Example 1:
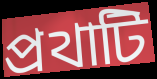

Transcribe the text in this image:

প্রথাটি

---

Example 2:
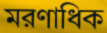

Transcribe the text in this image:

মরণাধিক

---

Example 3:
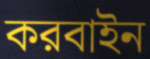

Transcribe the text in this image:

করবাইন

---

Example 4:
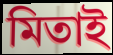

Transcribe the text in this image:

মিতাই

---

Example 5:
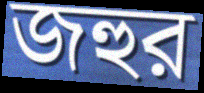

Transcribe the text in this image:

জহুর